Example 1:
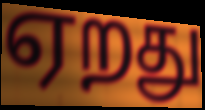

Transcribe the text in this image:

ஏறது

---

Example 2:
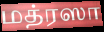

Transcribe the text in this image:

மத்ரஸா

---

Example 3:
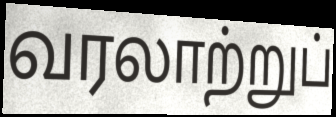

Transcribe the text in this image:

வரலாற்றுப்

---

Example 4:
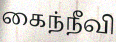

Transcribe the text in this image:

கைந்நீவி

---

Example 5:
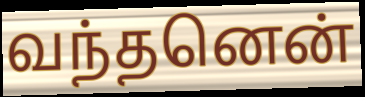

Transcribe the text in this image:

வந்தனென்